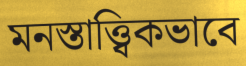
মনস্তাত্ত্বিকভাবে